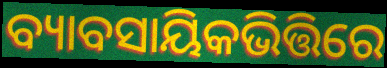
ବ୍ୟାବସାୟିକଭିତ୍ତିରେ